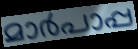
മാർപാപ്പ